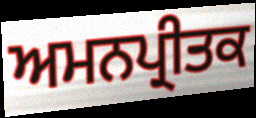
ਅਮਨਪ੍ਰੀਤਕ